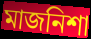
মাজনিশা